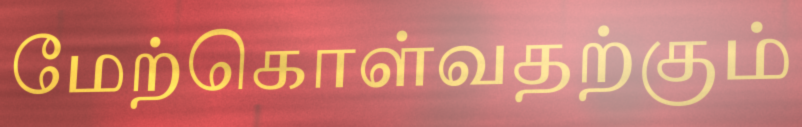
மேற்கொள்வதற்கும்